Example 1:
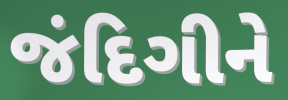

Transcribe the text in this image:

જંદિગીને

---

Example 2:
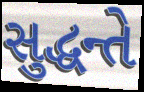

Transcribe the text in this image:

સુદ્ધન્તે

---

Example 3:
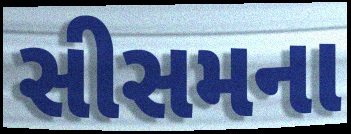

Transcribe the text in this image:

સીસમના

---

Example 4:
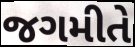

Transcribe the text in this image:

જગમીતે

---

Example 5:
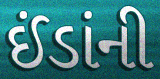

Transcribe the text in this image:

ઈંડાંની